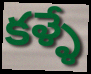
కళ్ళే